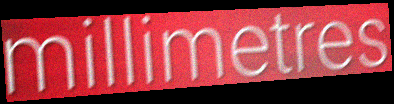
millimetres